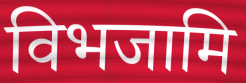
विभजामि